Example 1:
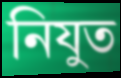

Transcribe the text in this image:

নিযুত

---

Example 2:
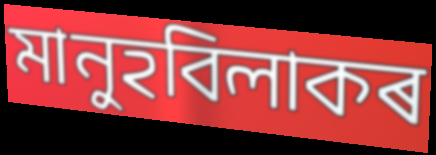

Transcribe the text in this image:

মানুহবিলাকৰ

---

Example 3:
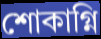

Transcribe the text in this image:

শোকাগ্নি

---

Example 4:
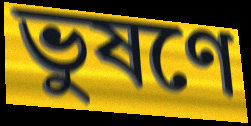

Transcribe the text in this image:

ভুষণে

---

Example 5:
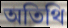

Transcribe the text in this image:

অতিথি